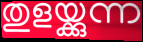
തുളയ്ക്കുന്ന